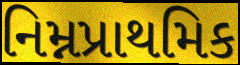
નિમ્નપ્રાથમિક